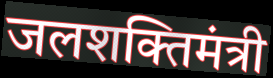
जलशक्तिमंत्री